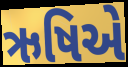
ઋષિએ